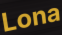
Lona